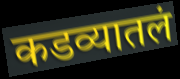
कडव्यातलं